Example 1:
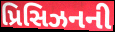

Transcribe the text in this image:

પ્રિસિઝનની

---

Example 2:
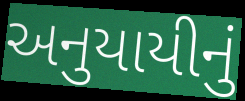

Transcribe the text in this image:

અનુયાયીનું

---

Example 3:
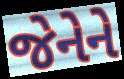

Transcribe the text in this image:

જેનેને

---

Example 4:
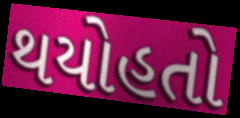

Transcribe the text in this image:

થયોહતો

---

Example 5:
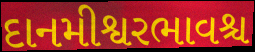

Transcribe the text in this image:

દાનમીશ્વરભાવશ્ચ